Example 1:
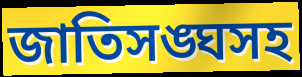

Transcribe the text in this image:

জাতিসঙ্ঘসহ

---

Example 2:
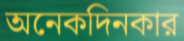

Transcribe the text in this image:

অনেকদিনকার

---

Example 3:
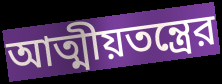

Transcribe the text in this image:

আত্মীয়তন্ত্রের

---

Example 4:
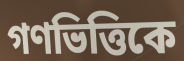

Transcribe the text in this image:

গণভিত্তিকে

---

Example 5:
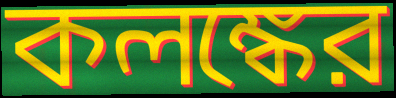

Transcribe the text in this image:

কলঙ্কের